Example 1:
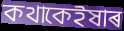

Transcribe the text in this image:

কথাকেইষাৰ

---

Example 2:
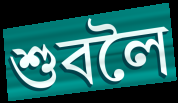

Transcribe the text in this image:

শুবলৈ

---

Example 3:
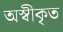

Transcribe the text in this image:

অস্বীকৃত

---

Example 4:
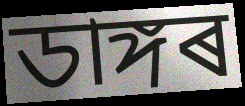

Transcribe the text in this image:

ডাঙ্গৰ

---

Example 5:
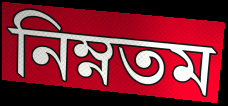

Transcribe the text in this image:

নিম্নতম